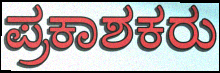
ಪ್ರಕಾಶಕರು